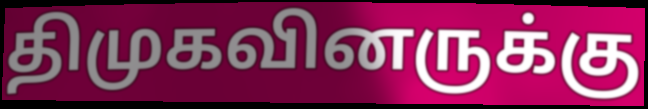
திமுகவினருக்கு